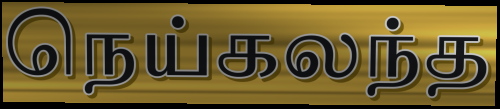
நெய்கலந்த